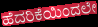
ಹೆದರಿಕೆಯಿಂದಲೇ